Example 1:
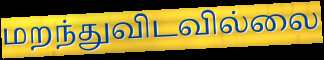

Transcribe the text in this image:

மறந்துவிடவில்லை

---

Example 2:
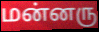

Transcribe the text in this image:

மன்னரு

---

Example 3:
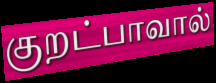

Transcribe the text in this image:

குறட்பாவால்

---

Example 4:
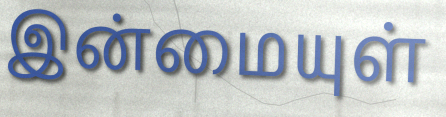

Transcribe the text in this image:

இன்மையுள்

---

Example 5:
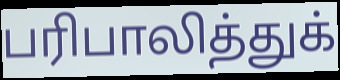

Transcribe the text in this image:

பரிபாலித்துக்